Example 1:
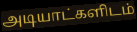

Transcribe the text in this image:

அடியாட்களிடம்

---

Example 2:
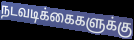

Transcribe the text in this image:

நடவடிக்கைகளுக்கு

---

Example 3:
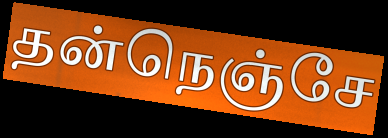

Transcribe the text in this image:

தன்நெஞ்சே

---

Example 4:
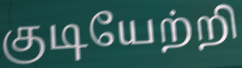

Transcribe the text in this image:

குடியேற்றி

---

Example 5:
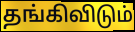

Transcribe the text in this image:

தங்கிவிடும்